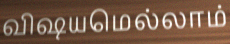
விஷயமெல்லாம்